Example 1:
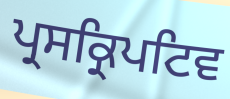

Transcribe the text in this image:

ਪ੍ਰਸਕ੍ਰਿਪਟਿਵ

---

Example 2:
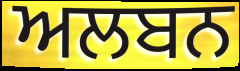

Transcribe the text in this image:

ਅਲਬਨ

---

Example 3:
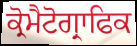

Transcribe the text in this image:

ਕ੍ਰੋਮੈਟੋਗ੍ਰਾਫਿਕ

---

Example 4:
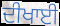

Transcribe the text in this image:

ਦੀਖਾਈ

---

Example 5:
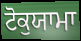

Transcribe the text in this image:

ਟੋਕੁਯਾਮਾ